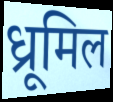
ध्रूमिल